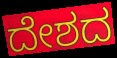
ದೇಶದ